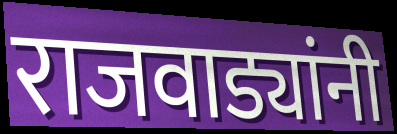
राजवाड्यांनी